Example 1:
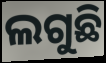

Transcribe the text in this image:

ଲଗୁଛି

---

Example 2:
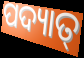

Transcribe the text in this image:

ପଦ୍ୟାତ୍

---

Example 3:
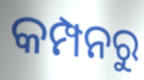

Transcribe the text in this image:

କମ୍ପନରୁ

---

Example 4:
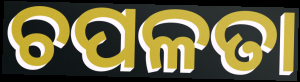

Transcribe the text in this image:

ଚପଳତା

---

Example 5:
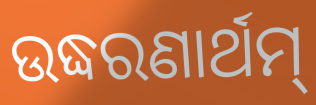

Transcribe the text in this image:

ଉଦ୍ଧରଣାର୍ଥମ୍